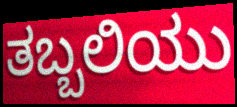
ತಬ್ಬಲಿಯು